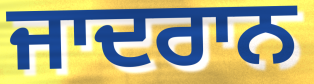
ਜਾਦਰਾਨ